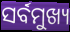
ସର୍ବମୁଖ୍ୟ